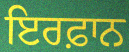
ਇਰਫ਼ਾਨ